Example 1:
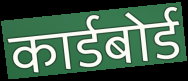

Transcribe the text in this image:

कार्डबोर्ड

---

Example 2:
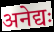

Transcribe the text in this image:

अनेद्यः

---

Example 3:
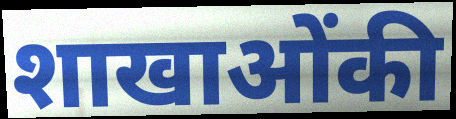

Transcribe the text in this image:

शाखाओंकी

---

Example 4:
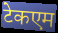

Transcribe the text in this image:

टेकएम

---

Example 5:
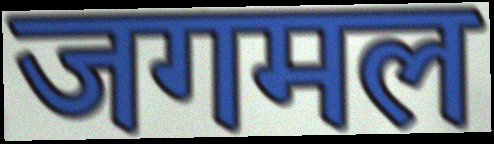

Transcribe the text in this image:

जगमल